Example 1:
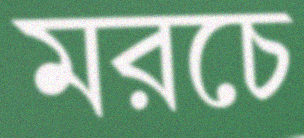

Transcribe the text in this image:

মরচে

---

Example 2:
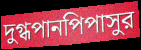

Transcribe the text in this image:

দুগ্ধপানপিপাসুর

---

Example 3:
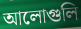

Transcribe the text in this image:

আলোগুলি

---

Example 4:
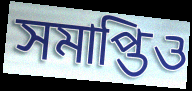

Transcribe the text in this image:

সমাপ্তিও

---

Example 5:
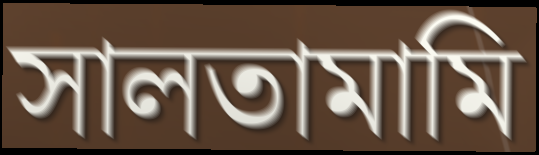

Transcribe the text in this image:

সালতামামি